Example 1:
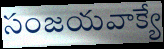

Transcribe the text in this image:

సంజయవాక్యే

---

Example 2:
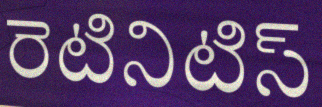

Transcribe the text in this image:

రెటినిటిస్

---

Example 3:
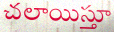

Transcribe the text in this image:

చలాయిస్తూ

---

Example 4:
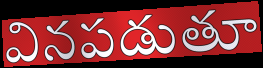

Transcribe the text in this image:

వినపడుతూ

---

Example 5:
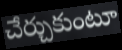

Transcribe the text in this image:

చేర్చుకుంటూ